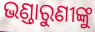
ଭଣ୍ଡାରୁଣୀଙ୍କୁ